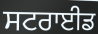
ਸਟਰਾਈਡ